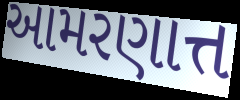
આમરણાત્ત